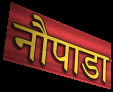
नौपाडा